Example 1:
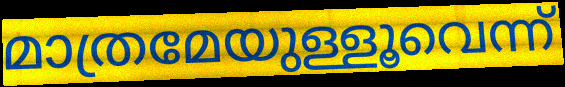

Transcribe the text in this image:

മാത്രമേയുള്ളൂവെന്ന്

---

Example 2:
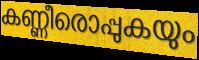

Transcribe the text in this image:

കണ്ണീരൊപ്പുകയും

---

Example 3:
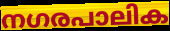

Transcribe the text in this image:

നഗരപാലിക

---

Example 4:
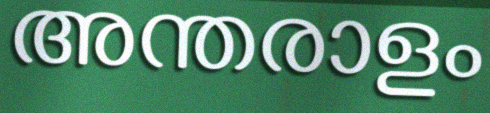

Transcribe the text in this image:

അന്തരാളം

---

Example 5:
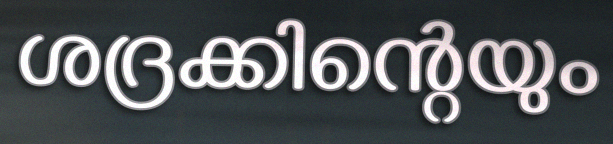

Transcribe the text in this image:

ശദ്രക്കിന്റെയും